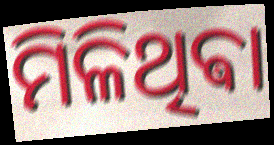
ମିଳିଥିଵା